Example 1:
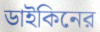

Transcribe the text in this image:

ডাইকিনের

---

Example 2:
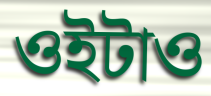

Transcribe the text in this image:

ওইটাও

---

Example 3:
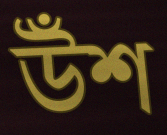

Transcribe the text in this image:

উঁশ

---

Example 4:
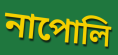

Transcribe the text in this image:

নাপোলি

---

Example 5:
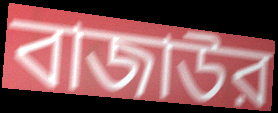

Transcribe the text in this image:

বাজাউর